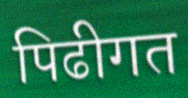
पिढीगत